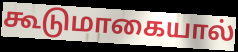
கூடுமாகையால்